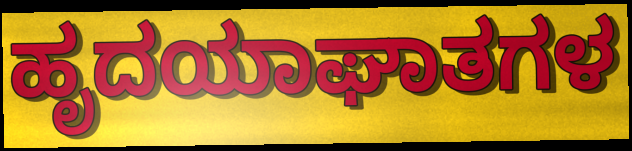
ಹೃದಯಾಘಾತಗಳ